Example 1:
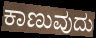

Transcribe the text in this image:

ಕಾಣುವುದು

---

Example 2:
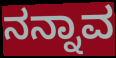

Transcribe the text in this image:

ನನ್ನಾವ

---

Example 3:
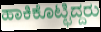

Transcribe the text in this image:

ಹಾಕಿಕೊಟ್ಟಿದ್ದರು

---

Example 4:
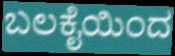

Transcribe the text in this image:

ಬಲಕೈಯಿಂದ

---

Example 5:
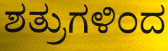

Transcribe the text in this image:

ಶತ್ರುಗಳಿಂದ